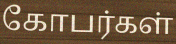
கோபர்கள்